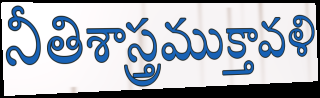
నీతిశాస్త్రముక్తావళి